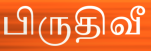
பிருதிவீ